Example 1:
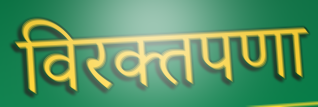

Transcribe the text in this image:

विरक्तपणा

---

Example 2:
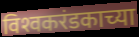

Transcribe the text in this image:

विश्वकरंडकाच्या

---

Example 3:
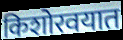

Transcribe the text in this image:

किशोरवयात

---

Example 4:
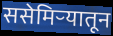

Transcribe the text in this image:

ससेमिऱ्यातून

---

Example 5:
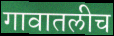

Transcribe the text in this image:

गावातलीच